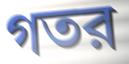
গতর